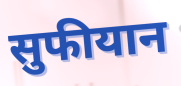
सुफीयान